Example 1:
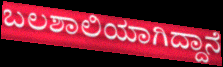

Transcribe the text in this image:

ಬಲಶಾಲಿಯಾಗಿದ್ದಾನೆ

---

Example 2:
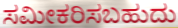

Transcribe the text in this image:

ಸಮೀಕರಿಸಬಹುದು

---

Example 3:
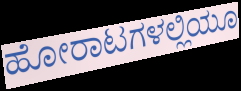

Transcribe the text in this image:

ಹೋರಾಟಗಳಲ್ಲಿಯೂ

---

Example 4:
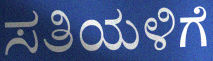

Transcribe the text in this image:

ಸತಿಯಳಿಗೆ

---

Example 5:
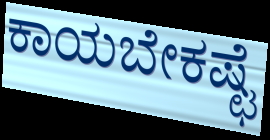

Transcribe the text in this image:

ಕಾಯಬೇಕಷ್ಟೆ